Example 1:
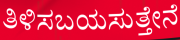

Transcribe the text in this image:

ತಿಳಿಸಬಯಸುತ್ತೇನೆ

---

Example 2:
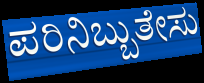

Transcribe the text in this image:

ಪರಿನಿಬ್ಬುತೇಸು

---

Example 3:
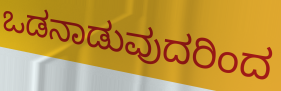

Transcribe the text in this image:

ಒಡನಾಡುವುದರಿಂದ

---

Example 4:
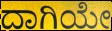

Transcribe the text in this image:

ದಾಗಿಯೇ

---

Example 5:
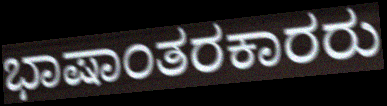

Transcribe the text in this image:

ಭಾಷಾಂತರಕಾರರು